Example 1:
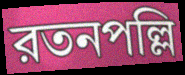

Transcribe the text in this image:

রতনপল্লি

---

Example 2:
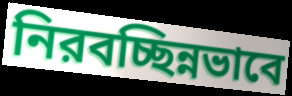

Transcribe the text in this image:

নিরবচ্ছিন্নভাবে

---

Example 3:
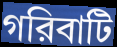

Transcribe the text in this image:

গরিবাটি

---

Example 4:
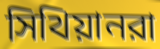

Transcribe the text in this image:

সিথিয়ানরা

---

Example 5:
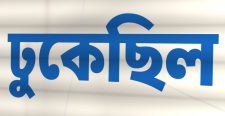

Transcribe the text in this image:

ঢুকেছিল